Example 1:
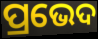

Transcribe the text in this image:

ପ୍ରଭେଦ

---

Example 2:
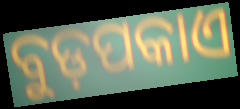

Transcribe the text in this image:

ବୁଡ଼ପକାଏ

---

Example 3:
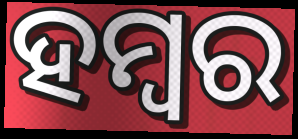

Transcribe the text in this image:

ହମ୍ବର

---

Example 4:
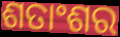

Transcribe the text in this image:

ଶତାଂଶର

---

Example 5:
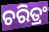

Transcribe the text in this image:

ଚରିତ୍ରଂ